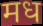
मध